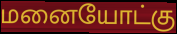
மனையோட்கு